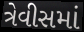
ત્રેવીસમાં